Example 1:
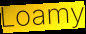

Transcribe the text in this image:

Loamy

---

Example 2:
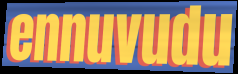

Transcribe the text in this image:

ennuvudu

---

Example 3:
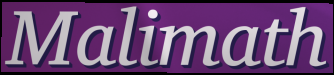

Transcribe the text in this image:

Malimath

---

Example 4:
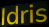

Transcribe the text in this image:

Idris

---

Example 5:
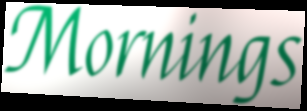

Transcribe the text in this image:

Mornings